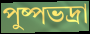
পুষ্পভদ্রা